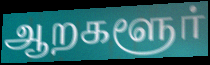
ஆறகளூர்